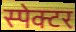
स्पेक्टर